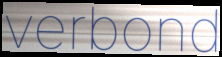
verbond